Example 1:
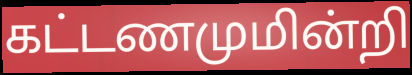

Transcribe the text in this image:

கட்டணமுமின்றி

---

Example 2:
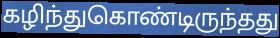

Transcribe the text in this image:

கழிந்துகொண்டிருந்தது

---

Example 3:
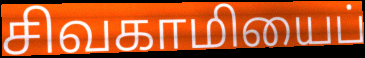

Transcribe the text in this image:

சிவகாமியைப்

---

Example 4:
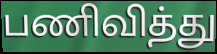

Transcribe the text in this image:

பணிவித்து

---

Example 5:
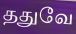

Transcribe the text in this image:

ததுவே